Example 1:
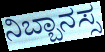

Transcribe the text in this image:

ನಿಬ್ಬಾನಸ್ಸ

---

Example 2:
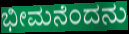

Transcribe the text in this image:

ಭೀಮನೆಂದನು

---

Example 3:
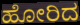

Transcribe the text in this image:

ಹೋರಿದ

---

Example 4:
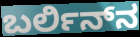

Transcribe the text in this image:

ಬರ್ಲಿನ್‍ನ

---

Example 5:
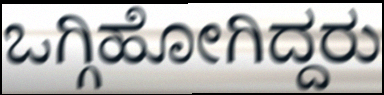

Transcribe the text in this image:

ಒಗ್ಗಿಹೋಗಿದ್ದರು